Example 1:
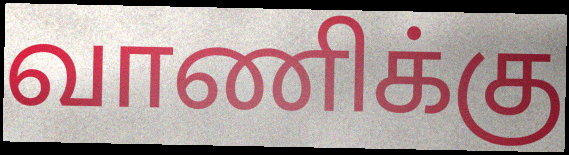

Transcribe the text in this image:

வாணிக்கு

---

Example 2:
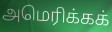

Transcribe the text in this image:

அமெரிக்கக்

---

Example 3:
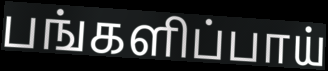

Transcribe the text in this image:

பங்களிப்பாய்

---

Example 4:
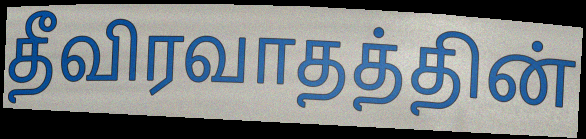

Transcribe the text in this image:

தீவிரவாதத்தின்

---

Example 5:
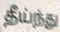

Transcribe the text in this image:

தீய்ந்து